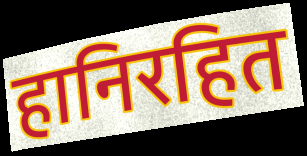
हानिरहित